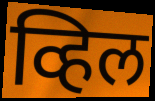
व्हिल